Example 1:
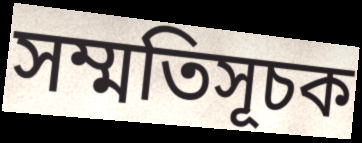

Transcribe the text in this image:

সম্মতিসূচক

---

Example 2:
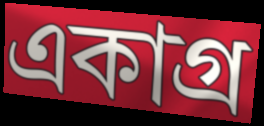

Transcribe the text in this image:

একাগ্র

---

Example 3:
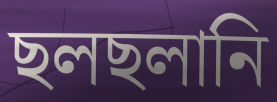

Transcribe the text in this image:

ছলছলানি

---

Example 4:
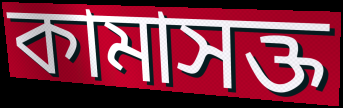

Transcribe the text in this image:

কামাসক্ত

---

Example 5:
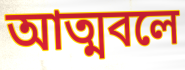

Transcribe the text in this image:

আত্মবলে